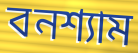
বনশ্যাম